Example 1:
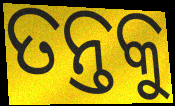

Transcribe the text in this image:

ତନ୍ତକୁ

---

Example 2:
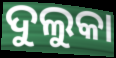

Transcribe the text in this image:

ଦୁଲୁକା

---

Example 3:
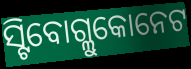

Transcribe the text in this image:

ସ୍ଟିବୋଗ୍ଲୁକୋନେଟ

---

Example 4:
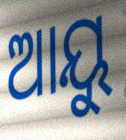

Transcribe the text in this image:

ଆୟୁ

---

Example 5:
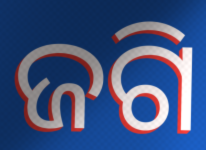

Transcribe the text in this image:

ଜଗି